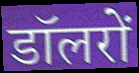
डॉलरों